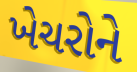
ખેચરોને